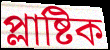
প্লাষ্টিক